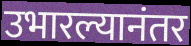
उभारल्यानंतर